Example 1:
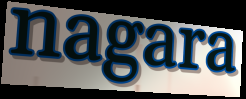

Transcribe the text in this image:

nagara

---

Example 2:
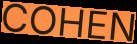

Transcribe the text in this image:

COHEN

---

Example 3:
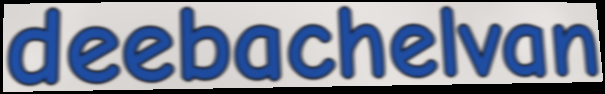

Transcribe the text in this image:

deebachelvan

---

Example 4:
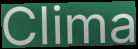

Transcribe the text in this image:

Clima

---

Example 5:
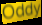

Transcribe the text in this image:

Oddy